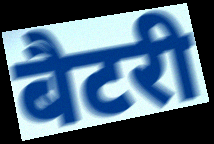
बैटरी